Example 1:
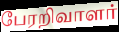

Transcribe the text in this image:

பேரறிவாளர்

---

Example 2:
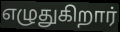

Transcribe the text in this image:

எழுதுகிறார்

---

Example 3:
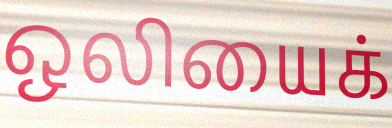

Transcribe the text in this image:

ஒலியைக்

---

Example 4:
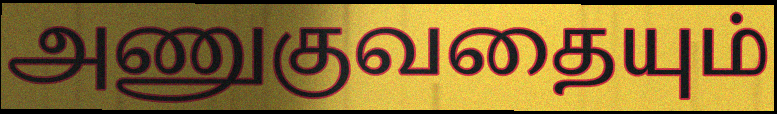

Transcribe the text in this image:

அணுகுவதையும்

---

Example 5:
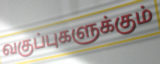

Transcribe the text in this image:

வகுப்புகளுக்கும்